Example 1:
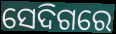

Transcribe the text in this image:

ସେଦିଗରେ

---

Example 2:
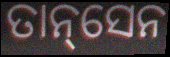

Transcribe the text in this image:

ତାନ୍‌ସେନ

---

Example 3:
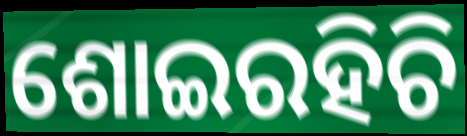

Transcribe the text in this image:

ଶୋଇରହିଚି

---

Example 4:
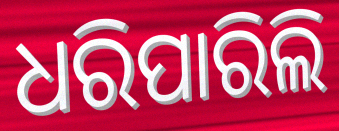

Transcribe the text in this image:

ଧରିପାରିଲି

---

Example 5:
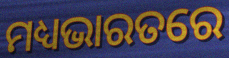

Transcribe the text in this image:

ମଧ୍ୟଭାରତରେ